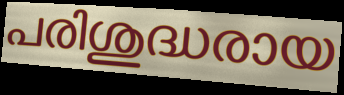
പരിശുദ്ധരായ